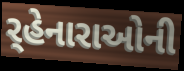
ર્‌હેનારાઓની